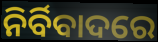
ନିର୍ବିବାଦରେ